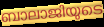
ബാലാജിയുടെ